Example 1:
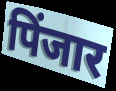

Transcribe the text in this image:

पिंजार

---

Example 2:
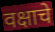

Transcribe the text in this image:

वक्षाचे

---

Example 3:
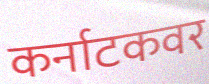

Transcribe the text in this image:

कर्नाटकवर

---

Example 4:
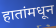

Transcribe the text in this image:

हातांमधून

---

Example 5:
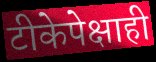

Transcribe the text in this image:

टीकेपेक्षाही